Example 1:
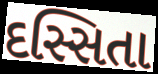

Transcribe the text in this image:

દસ્સિતા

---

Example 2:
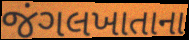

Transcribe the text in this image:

જંગલખાતાના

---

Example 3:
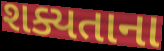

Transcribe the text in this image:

શક્યતાના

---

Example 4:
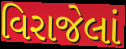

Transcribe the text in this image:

વિરાજેલાં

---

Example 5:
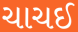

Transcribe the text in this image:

ચાચઈ